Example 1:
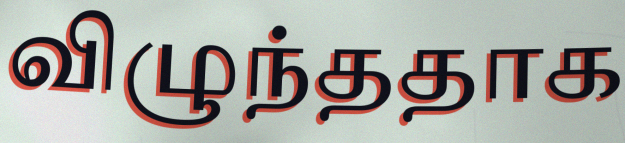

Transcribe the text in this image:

விழுந்ததாக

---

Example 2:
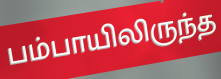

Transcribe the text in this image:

பம்பாயிலிருந்த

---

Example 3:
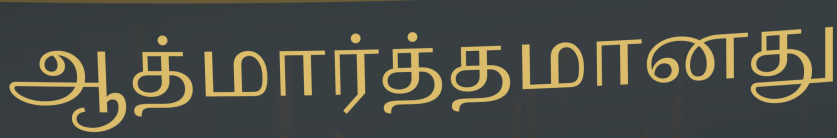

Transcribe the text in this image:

ஆத்மார்த்தமானது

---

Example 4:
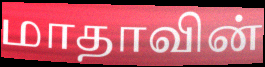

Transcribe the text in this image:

மாதாவின்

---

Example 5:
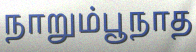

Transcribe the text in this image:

நாறும்பூநாத